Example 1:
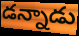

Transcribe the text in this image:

డన్నాడు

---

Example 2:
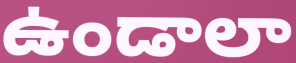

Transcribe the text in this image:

ఉండాలా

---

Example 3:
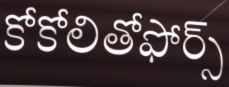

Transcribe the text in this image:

కోకోలితోఫోర్స్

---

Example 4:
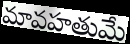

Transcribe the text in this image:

మావహతుమే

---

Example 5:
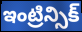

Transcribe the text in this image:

ఇంట్రిన్సిక్